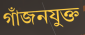
গাঁজনযুক্ত